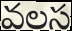
వలస